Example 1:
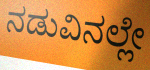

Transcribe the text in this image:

ನಡುವಿನಲ್ಲೇ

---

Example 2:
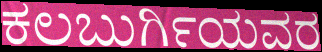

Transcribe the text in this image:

ಕಲಬುರ್ಗಿಯವರ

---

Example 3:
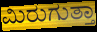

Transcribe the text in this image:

ಮಿರುಗುತ್ತಾ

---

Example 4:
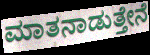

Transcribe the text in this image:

ಮಾತನಾಡುತ್ತೇನೆ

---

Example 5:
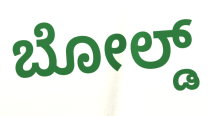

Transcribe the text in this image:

ಬೋಲ್ಡ್